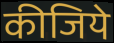
कीजिये